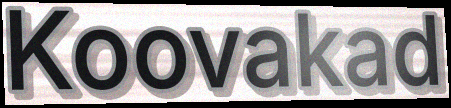
Koovakad